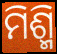
ମିଶ୍ମି